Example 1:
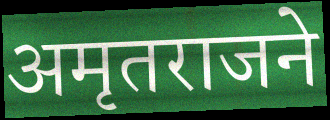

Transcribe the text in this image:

अमृतराजने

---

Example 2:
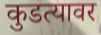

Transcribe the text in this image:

कुडत्यावर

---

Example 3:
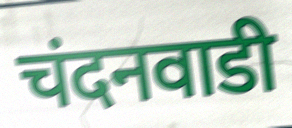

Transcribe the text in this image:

चंदनवाडी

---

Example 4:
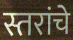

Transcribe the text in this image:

स्तरांचे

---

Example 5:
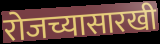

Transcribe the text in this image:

रोजच्यासारखी